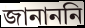
জানাননি